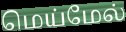
மெய்மேல்